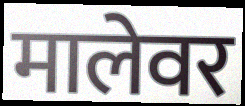
मालेवर